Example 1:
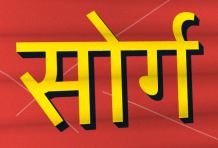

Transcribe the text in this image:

सोर्ग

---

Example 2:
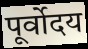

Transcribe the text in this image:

पूर्वोदय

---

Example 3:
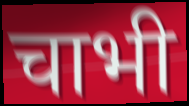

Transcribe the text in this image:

चाभी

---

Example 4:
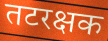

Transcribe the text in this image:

तटरक्षक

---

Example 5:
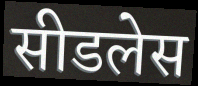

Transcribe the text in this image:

सीडलेस